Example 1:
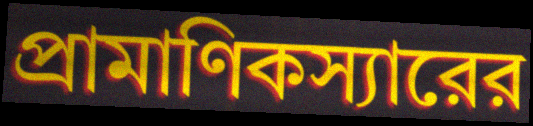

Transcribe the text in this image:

প্রামাণিকস্যারের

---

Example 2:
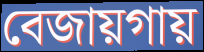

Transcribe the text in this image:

বেজায়গায়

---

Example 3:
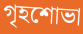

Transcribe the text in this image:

গৃহশোভা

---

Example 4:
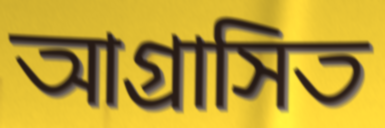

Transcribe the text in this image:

আগ্রাসিত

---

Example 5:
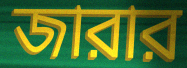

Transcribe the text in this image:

জারার